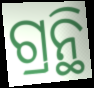
ଗ୍ରନ୍ଥି